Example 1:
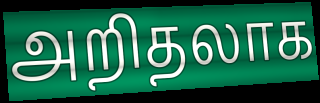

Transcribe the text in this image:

அறிதலாக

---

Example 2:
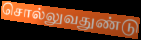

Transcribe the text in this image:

சொல்லுவதுண்டு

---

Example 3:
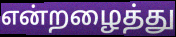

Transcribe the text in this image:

என்றழைத்து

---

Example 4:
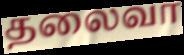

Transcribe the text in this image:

தலைவா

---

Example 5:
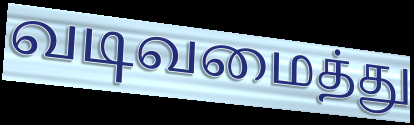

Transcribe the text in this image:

வடிவமைத்து